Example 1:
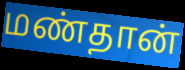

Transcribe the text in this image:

மண்தான்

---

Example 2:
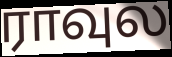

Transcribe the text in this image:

ராவுல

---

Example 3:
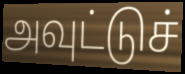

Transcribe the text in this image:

அவுட்டுச்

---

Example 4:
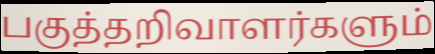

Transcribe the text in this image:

பகுத்தறிவாளர்களும்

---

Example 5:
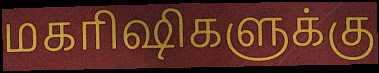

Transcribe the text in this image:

மகரிஷிகளுக்கு